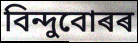
বিন্দুবোৰৰ